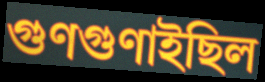
গুণগুণাইছিল